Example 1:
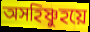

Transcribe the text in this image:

অসহিষ্ণুহয়ে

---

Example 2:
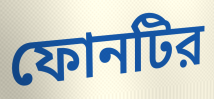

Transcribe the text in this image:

ফোনটির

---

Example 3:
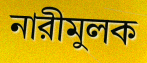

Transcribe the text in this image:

নারীমুলক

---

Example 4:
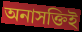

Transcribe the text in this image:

অনাসক্তিই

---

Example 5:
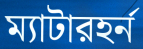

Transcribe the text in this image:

ম্যাটারহর্ন